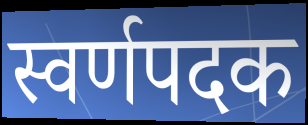
स्वर्णपदक